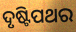
ଦୃଷ୍ଟିପଥର